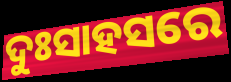
ଦୁଃସାହସରେ